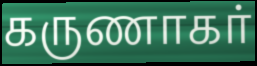
கருணாகர்